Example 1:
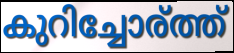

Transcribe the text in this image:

കുറിച്ചോര്ത്ത്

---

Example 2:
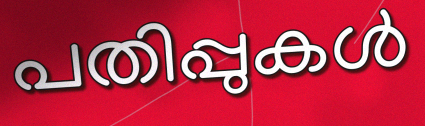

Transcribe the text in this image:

പതിപ്പുകൾ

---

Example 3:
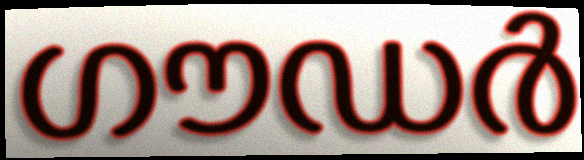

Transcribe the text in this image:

ഗൗഡർ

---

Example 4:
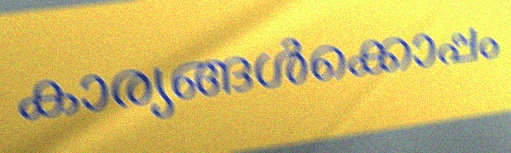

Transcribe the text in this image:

കാര്യങ്ങൾക്കൊപ്പം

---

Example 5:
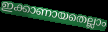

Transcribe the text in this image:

ഇക്കാണായതെല്ലാം